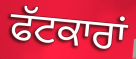
ਫੱਟਕਾਰਾਂ